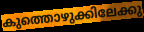
കുത്തൊഴുക്കിലേക്കു